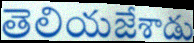
తెలియజేశాడు